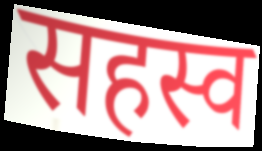
सहस्व